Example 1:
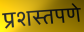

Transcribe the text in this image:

प्रशस्तपणे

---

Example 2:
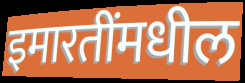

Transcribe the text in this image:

इमारतींमधील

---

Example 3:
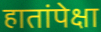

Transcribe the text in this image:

हातांपेक्षा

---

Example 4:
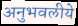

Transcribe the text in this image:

अनुभवलीये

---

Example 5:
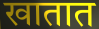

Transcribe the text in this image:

खातात